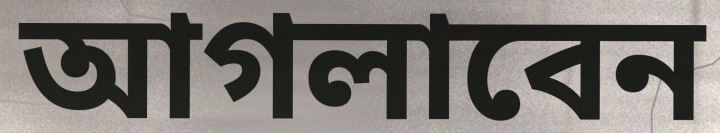
আগলাবেন